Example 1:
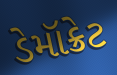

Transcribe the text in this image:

ડેમૉક્રેટ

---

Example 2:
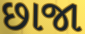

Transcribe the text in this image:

છાજા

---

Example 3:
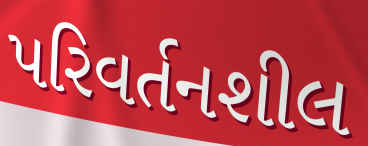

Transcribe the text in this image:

પરિવર્તનશીલ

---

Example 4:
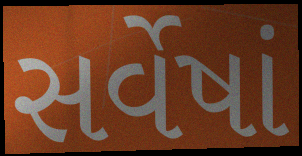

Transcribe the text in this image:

સર્વેષાં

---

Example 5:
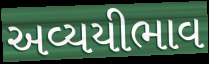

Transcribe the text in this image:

અવ્યયીભાવ